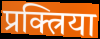
प्रक्त्रिया